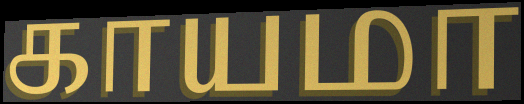
காயமா